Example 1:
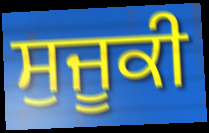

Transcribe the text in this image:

ਸੁਜੂਕੀ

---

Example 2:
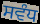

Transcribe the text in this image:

ਸਵੰਧ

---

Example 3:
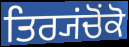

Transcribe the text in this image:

ਤਿਰ੍ਯਂਚੋਂਕੋ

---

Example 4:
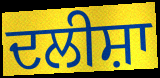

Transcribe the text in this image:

ਦਲੀਸ਼ਾ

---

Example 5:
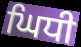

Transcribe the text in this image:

ਘਿਧੀ